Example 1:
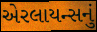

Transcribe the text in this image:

એરલાયન્સનું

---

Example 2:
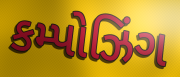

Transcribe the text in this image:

કમ્પોઝિંગ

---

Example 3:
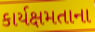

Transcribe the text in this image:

કાર્યક્ષમતાના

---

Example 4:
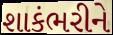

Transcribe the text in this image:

શાકંભરીને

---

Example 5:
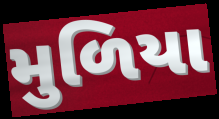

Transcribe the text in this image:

મુળિયા